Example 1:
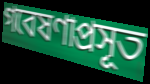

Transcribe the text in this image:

গবেষণাপ্রসূত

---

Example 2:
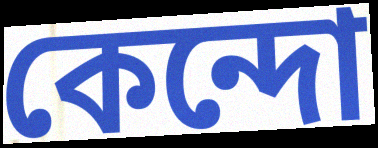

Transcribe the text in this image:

কেন্দো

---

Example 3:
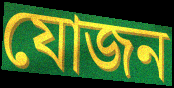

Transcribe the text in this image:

যোজন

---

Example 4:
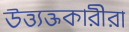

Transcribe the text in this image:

উত্ত্যক্তকারীরা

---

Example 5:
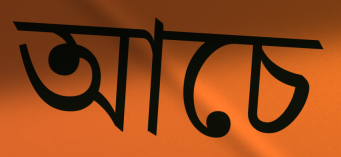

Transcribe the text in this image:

আচে